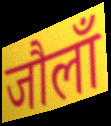
जौलाँ